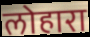
लोहारा